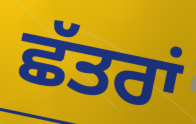
ਛੱਤਰਾਂ